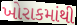
ખોરાકમાંથી